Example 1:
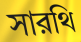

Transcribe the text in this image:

সারথি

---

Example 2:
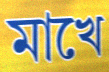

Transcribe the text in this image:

মাখে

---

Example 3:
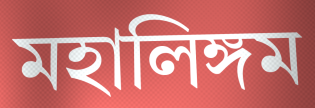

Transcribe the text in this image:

মহালিঙ্গম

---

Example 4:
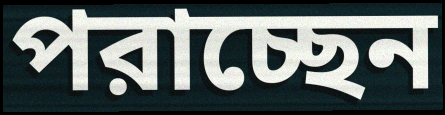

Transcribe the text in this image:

পরাচ্ছেন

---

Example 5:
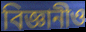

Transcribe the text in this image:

বিজ্ঞানীও